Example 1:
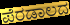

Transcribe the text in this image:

ಪೆರಡಾಲದ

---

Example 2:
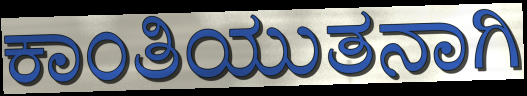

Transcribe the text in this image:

ಕಾಂತಿಯುತನಾಗಿ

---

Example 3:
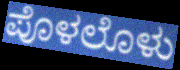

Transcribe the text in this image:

ಪೊಳಲೊಳು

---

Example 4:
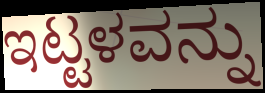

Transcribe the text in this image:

ಇಟ್ಟಳವನ್ನು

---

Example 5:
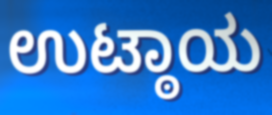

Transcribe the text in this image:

ಉಟ್ಠಾಯ